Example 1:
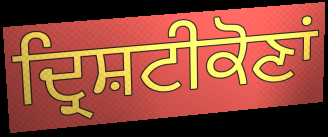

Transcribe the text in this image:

ਦ੍ਰਿਸ਼ਟੀਕੋਣਾਂ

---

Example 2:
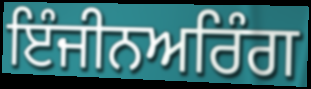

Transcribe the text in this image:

ਇੰਜੀਨਅਰਿੰਗ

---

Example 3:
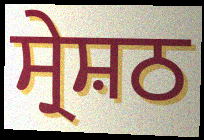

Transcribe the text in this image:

ਸ੍ਰੇਸ਼ਠ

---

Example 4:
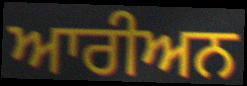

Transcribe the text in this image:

ਆਰੀਅਨ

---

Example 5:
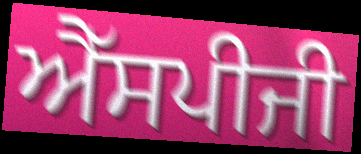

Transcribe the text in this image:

ਐੱਸਪੀਜੀ